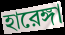
হারেঙ্গা